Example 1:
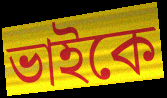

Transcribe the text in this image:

ভাইকে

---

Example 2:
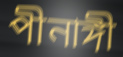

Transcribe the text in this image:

পীনাঙ্গী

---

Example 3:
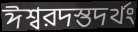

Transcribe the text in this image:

ঈশ্বরদস্তদর্থং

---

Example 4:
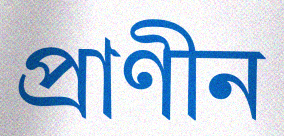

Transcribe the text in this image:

প্রাণীন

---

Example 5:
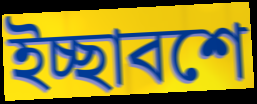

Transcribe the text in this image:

ইচ্ছাবশে